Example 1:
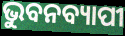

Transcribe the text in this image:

ଭୁବନବ୍ୟାପୀ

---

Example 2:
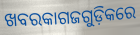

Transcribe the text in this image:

ଖବରକାଗଜଗୁଡ଼ିକରେ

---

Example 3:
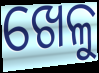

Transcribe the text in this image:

ଖେଳୁ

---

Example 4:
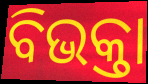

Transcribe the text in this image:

ବିଭକ୍ତା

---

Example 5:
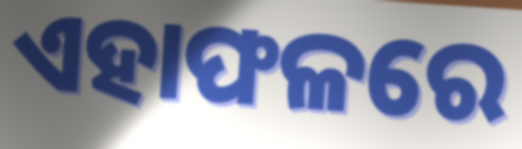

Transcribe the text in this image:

ଏହାଫଳରେ